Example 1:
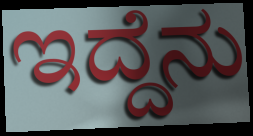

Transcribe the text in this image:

ಇದ್ದೆನು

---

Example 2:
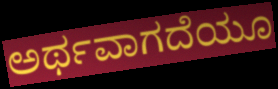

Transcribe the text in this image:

ಅರ್ಥವಾಗದೆಯೂ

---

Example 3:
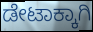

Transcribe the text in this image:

ಡೇಟಾಕ್ಕಾಗಿ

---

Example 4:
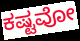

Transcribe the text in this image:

ಕಷ್ಟವೋ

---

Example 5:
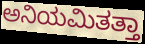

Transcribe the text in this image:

ಅನಿಯಮಿತತ್ತಾ